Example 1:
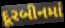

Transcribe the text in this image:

દૂરબીનમાં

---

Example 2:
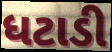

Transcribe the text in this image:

ધટાડી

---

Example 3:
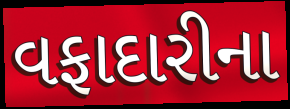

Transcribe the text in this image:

વફાદારીના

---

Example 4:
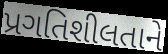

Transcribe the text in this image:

પ્રગતિશીલતાને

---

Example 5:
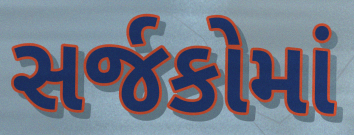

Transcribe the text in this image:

સર્જકોમાં